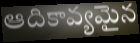
ఆదికావ్యమైన